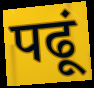
पढूं